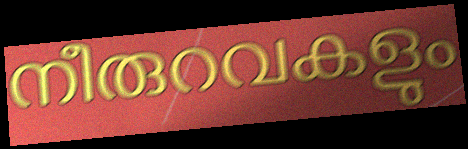
നീരുറവകളും